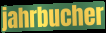
jahrbucher